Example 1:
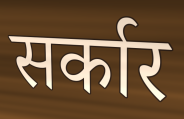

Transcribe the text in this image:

सर्कार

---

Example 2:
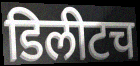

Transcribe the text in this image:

डिलीटच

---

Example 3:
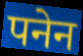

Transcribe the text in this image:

पनेन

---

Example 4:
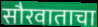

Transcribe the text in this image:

सौरवाताचा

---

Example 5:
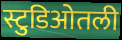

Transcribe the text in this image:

स्टुडिओतली